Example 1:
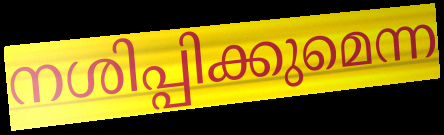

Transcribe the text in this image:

നശിപ്പിക്കുമെന്ന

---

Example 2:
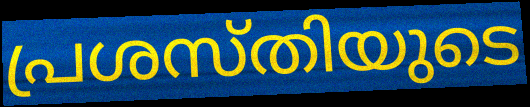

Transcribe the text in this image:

പ്രശസ്തിയുടെ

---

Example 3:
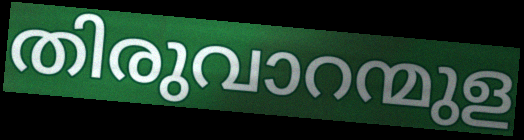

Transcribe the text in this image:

തിരുവാറന്മുള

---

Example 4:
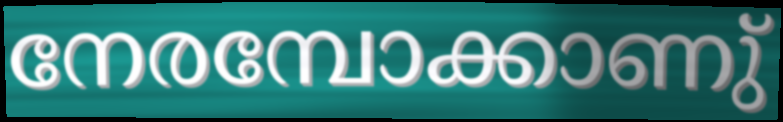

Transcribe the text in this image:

നേരമ്പോക്കാണു്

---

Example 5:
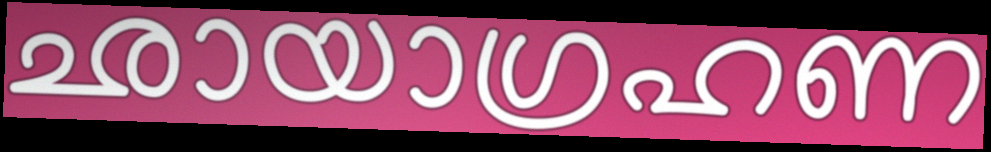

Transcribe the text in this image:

ഛായാഗ്രഹണ